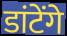
डांटेंगे